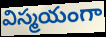
విస్మయంగా